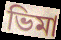
ভিমা